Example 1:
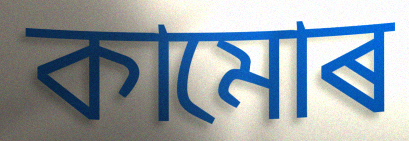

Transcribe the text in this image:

কামোৰ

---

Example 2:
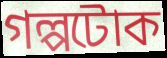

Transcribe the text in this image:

গল্পটোক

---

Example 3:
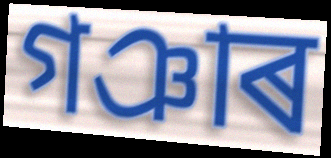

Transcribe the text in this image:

গঞাৰ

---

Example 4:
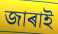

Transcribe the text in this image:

জাৰাই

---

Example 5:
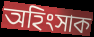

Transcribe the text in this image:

অহিংসাক